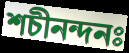
শচীনন্দনঃ